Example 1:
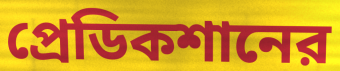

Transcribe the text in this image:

প্রেডিকশানের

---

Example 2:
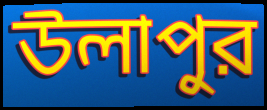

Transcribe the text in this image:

উলাপুর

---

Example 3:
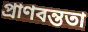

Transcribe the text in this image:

প্রাণবন্ততা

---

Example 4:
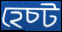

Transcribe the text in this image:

হেচ্ট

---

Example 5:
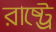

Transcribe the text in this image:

রাষ্ট্রে